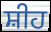
ਸ਼ੀਹ